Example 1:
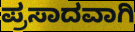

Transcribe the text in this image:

ಪ್ರಸಾದವಾಗಿ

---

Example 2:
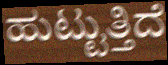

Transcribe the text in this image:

ಹುಟ್ಟುತ್ತಿದೆ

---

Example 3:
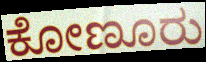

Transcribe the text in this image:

ಕೋಣೂರು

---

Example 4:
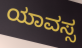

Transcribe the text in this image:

ಯಾವಸ್ಸ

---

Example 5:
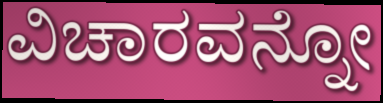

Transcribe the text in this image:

ವಿಚಾರವನ್ನೋ